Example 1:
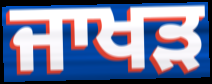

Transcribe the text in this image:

ਜਾਖੜ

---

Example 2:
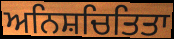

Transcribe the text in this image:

ਅਨਿਸ਼ਚਿਤਿਤਾ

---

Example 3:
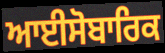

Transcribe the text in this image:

ਆਈਸੋਬਾਰਿਕ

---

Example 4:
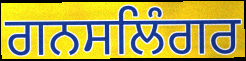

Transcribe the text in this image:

ਗਨਸਲਿੰਗਰ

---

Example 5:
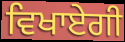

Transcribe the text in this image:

ਵਿਖਾਏਗੀ